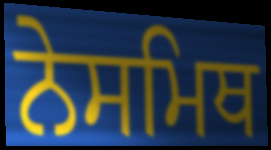
ਨੇਸਮਿਥ